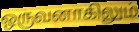
ஒருவனாகிலும்